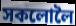
সকলোলৈ